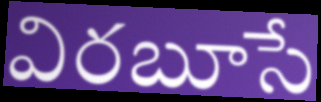
విరబూసే